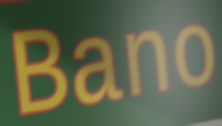
Bano